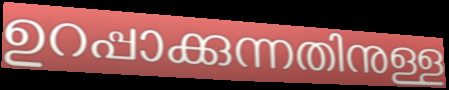
ഉറപ്പാക്കുന്നതിനുള്ള